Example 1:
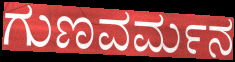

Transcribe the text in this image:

ಗುಣವರ್ಮನ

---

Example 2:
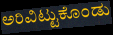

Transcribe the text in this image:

ಅರಿವಿಟ್ಟುಕೊಂಡು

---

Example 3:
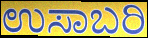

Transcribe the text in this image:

ಉಸಾಬರಿ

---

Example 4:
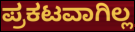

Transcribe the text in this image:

ಪ್ರಕಟವಾಗಿಲ್ಲ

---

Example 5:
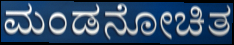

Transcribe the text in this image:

ಮಂಡನೋಚಿತ